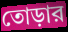
তোড়ার